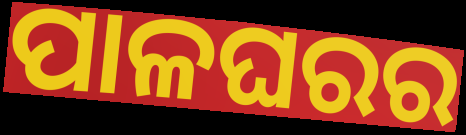
ପାଳଘରର